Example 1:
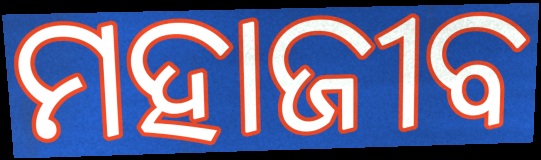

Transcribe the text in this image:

ମହାଜୀବ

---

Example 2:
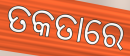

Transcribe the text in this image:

ତକତାରେ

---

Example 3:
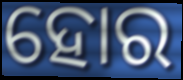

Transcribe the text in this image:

ହୋର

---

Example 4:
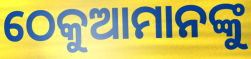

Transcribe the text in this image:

ଠେକୁଆମାନଙ୍କୁ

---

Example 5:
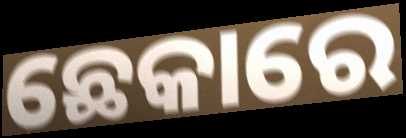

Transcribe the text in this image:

ଛେକାରେ